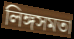
লিঙ্গসমতা